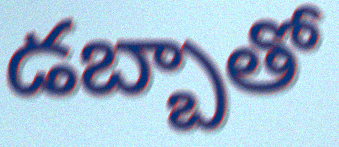
డబ్బాతో